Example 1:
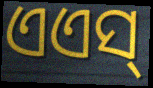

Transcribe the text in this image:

ଏଏସ୍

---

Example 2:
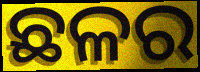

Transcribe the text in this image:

ଛଳର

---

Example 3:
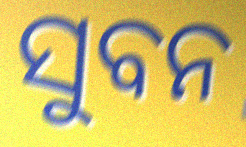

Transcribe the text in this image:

ସୁବନ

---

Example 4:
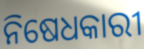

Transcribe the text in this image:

ନିଷେଧକାରୀ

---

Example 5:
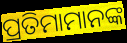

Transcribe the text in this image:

ପ୍ରତିମାମାନଙ୍କ